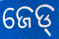
ଜେଡ୍